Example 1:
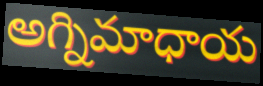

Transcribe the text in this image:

అగ్నిమాధాయ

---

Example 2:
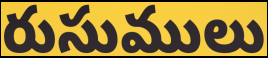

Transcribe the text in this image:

రుసుములు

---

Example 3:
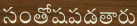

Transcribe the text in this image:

సంతోషపడతారు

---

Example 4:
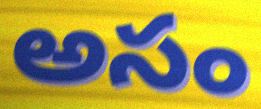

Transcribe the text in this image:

అసం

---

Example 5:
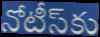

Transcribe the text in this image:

నోటీస్‌కు